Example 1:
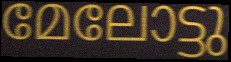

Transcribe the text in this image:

മേലോട്ടു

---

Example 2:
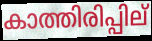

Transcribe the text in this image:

കാത്തിരിപ്പില്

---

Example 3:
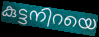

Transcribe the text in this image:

കുട്ടനിറയെ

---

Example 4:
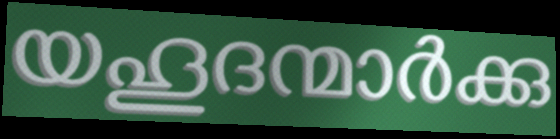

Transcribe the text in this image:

യഹൂദന്മാർക്കു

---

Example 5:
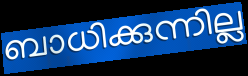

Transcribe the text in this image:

ബാധിക്കുന്നില്ല